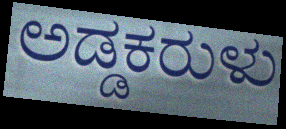
ಅಡ್ಡಕರುಳು